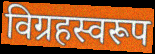
विग्रहस्वरूप